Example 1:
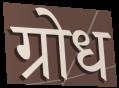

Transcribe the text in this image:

ग्रोध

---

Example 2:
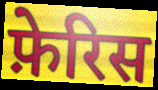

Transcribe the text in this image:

फ़ेरिस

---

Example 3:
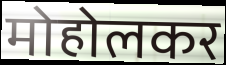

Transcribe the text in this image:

मोहोलकर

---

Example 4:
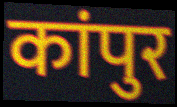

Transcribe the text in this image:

कांपुर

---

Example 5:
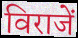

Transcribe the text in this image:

विराजें